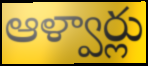
ఆళ్వార్లు